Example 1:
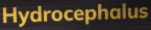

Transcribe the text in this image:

Hydrocephalus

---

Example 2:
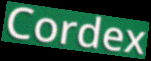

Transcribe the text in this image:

Cordex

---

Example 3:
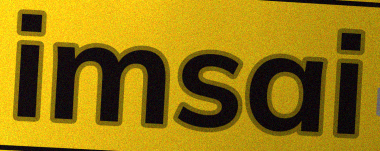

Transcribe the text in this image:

imsai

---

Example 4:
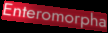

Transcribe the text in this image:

Enteromorpha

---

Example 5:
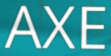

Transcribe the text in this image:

AXE